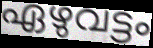
ഏഴുവട്ടം